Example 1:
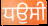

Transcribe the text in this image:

ਧਉਸੀ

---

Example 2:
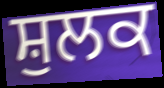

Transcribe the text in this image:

ਸ਼ੁਲਕ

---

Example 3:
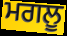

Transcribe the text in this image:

ਮਗਲੂ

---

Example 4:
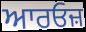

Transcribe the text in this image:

ਆਰਓਜ਼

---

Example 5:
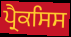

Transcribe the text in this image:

ਪ੍ਰੈਕਸਿਸ